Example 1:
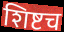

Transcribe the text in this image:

शिष्टच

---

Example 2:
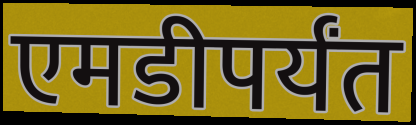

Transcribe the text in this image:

एमडीपर्यंत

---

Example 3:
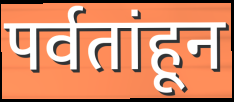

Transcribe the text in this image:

पर्वतांहून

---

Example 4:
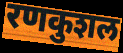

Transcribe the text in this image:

रणकुशल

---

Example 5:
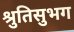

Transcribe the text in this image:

श्रुतिसुभग